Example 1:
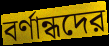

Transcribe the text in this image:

বর্ণান্ধদের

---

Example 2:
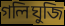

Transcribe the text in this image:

গলিঘুজি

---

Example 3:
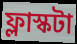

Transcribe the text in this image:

ফ্লাস্কটা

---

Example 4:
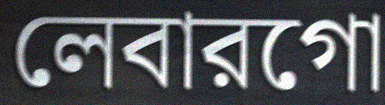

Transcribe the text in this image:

লেবারগো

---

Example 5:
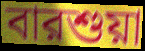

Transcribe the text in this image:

বারশুয়া